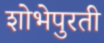
शोभेपुरती